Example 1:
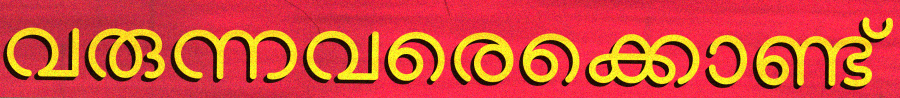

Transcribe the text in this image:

വരുന്നവരെക്കൊണ്ട്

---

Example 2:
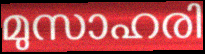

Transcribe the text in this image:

മുസാഹരി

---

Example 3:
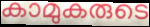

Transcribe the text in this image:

കാമുകരുടെ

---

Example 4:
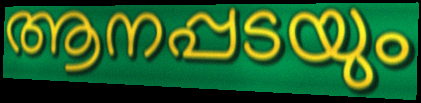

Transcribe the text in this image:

ആനപ്പടയും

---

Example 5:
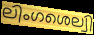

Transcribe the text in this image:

ലിംഗശെല്വി